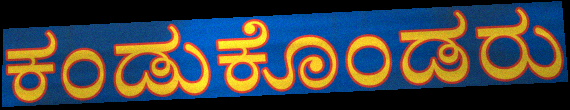
ಕಂಡುಕೊಂಡರು